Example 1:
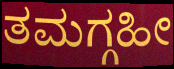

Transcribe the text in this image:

ತಮಗ್ಗಹೀ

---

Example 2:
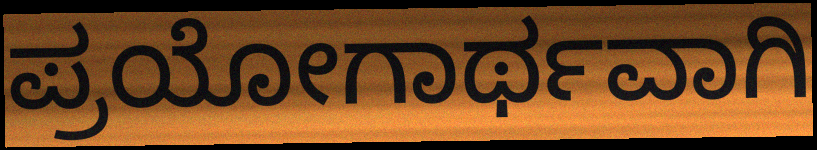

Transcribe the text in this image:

ಪ್ರಯೋಗಾರ್ಥವಾಗಿ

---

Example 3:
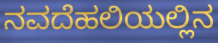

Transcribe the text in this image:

ನವದೆಹಲಿಯಲ್ಲಿನ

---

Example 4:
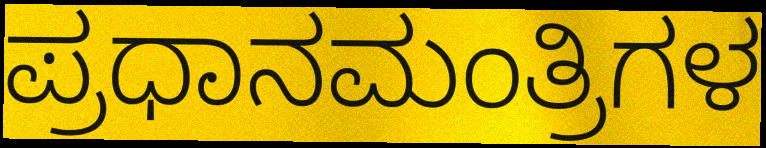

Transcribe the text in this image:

ಪ್ರಧಾನಮಂತ್ರಿಗಳ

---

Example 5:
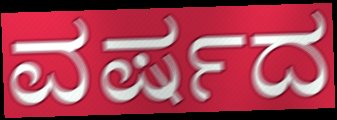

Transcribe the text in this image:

ವರ್ಷದ